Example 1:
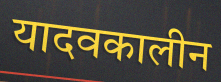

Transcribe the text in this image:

यादवकालीन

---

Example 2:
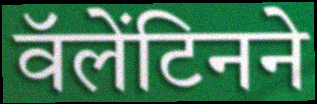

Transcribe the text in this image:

वॅलेंटिनने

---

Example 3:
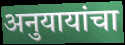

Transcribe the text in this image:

अनुयायांचा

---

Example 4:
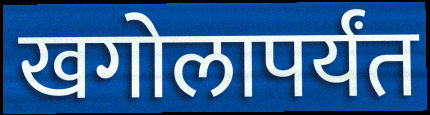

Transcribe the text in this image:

खगोलापर्यंत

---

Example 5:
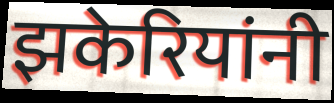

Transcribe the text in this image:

झकेरियांनी